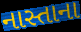
નાસ્તાના